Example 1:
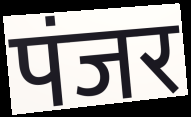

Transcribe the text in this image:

पंजर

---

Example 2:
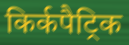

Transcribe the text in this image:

किर्कपैट्रिक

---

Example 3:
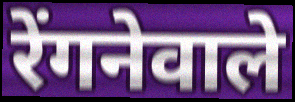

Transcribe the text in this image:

रेंगनेवाले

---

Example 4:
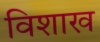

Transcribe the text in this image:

विशाख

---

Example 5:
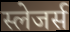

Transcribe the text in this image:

स्लेजर्स